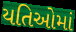
યતિઓમાં